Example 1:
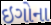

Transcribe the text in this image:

ઇગોના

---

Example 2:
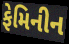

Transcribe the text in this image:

ફેમિનીન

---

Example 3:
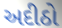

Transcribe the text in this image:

અદીઠો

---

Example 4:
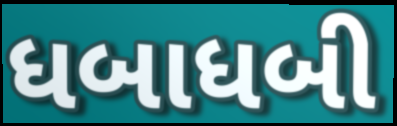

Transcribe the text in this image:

ધબાધબી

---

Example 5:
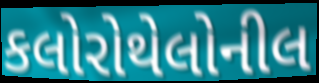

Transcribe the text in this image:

કલોરોથેલોનીલ